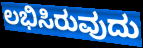
ಲಭಿಸಿರುವುದು